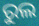
ରୁଲ